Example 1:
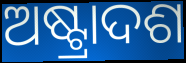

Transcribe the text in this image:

ଅଷ୍ଟ୍ରାଦଶ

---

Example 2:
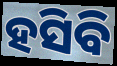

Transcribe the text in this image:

ହସିବି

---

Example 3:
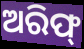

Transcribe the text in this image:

ଅରିଫ୍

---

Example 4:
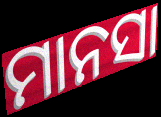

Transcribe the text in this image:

ମାନସା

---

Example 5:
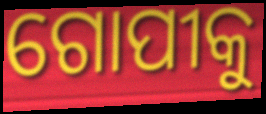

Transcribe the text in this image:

ଗୋପୀକୁ